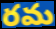
రమ